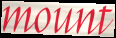
mount